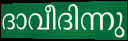
ദാവീദിന്നു